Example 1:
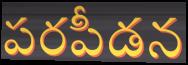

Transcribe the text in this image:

పరపీడన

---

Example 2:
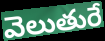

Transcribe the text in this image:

వెలుతురే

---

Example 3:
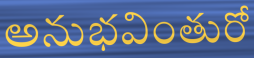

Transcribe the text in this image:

అనుభవింతురో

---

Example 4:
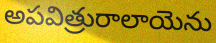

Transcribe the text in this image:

అపవిత్రురాలాయెను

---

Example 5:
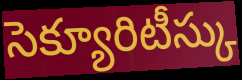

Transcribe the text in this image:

సెక్యూరిటీస్కు